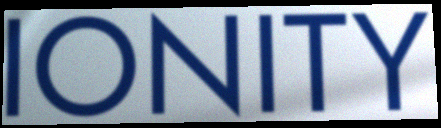
IONITY